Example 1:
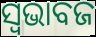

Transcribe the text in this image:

ସ୍ୱଭାବଜ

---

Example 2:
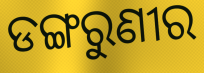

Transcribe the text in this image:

ଡଙ୍ଗରୁଣୀର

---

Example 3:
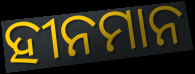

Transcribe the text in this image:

ହୀନମାନ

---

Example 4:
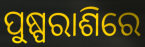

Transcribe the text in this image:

ପୁଷ୍ପରାଶିରେ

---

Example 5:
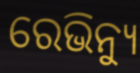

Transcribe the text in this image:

ରେଭିନ୍ୟୁ